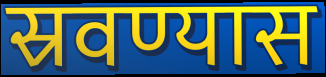
स्रवण्यास